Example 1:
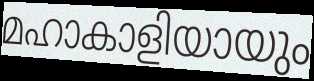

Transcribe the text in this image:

മഹാകാളിയായും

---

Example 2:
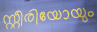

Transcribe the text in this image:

സ്റ്റീരിയോയും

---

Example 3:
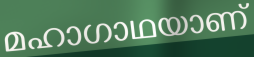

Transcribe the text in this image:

മഹാഗാഥയാണ്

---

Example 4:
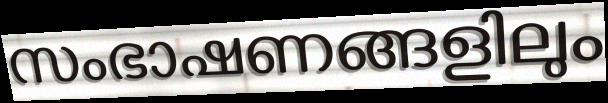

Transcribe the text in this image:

സംഭാഷണങ്ങളിലും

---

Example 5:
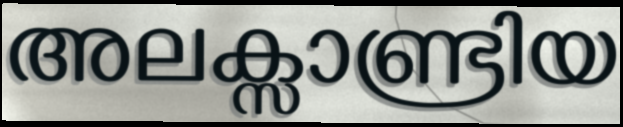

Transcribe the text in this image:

അലക്സാണ്ട്രിയ